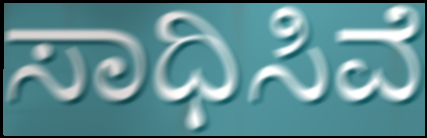
ಸಾಧಿಸಿವೆ